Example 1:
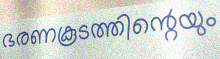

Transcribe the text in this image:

ഭരണകൂടത്തിന്റെയും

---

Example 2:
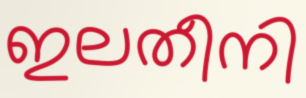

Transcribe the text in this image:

ഇലതീനി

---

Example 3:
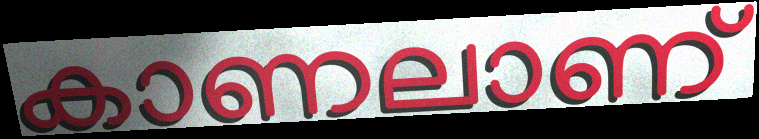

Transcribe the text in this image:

കാണലാണ്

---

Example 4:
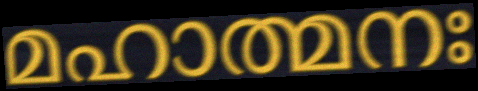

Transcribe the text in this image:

മഹാത്മനഃ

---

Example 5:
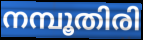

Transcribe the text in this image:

നമ്പൂതിരി